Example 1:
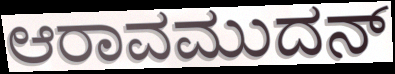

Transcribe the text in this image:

ಆರಾವಮುದನ್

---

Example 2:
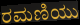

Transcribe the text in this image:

ರಮಣಿಯು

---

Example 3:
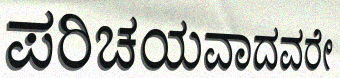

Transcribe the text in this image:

ಪರಿಚಯವಾದವರೇ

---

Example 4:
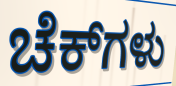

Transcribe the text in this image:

ಚೆಕ್‌ಗಳು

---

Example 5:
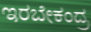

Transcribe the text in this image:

ಇರಬೇಕಂದ್ರ